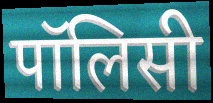
पॉलिसी